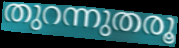
തുറന്നുതരൂ